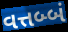
વત્તબ્બં